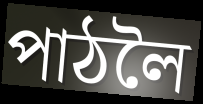
পাঠলৈ